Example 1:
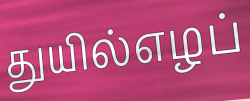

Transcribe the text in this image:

துயில்எழப்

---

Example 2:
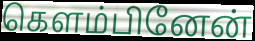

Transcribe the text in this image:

கெளம்பினேன்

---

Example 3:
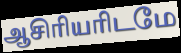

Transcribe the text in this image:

ஆசிரியரிடமே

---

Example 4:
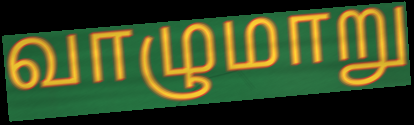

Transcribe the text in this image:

வாழுமாறு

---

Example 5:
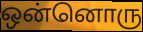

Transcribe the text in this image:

ஒன்னொரு